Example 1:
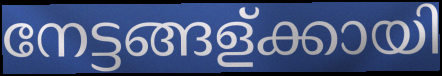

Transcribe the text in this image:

നേട്ടങ്ങള്ക്കായി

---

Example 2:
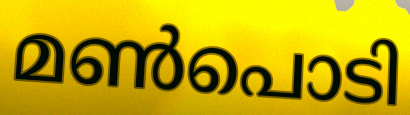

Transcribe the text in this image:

മൺപൊടി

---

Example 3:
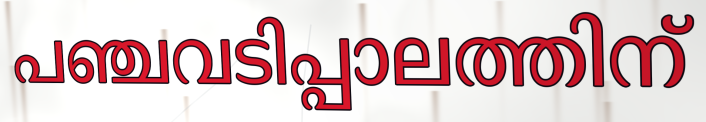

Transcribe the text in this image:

പഞ്ചവടിപ്പാലത്തിന്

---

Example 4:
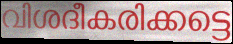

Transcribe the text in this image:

വിശദീകരിക്കട്ടെ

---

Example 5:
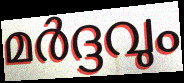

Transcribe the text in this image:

മർദ്ദവും